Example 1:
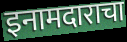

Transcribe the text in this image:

इनामदाराचा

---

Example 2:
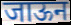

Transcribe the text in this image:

जाऊन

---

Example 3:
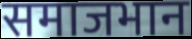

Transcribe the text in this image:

समाजभान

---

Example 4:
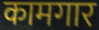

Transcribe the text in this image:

कामगार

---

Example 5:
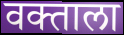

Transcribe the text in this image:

वक्ताला